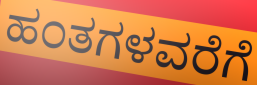
ಹಂತಗಳವರೆಗೆ